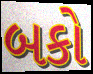
બકો